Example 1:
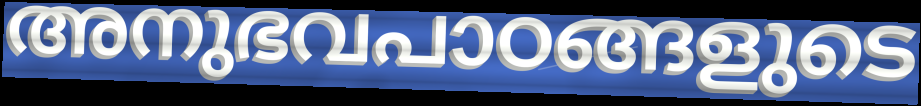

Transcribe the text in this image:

അനുഭവപാഠങ്ങളുടെ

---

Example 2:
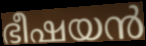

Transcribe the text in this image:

ഭീഷയൻ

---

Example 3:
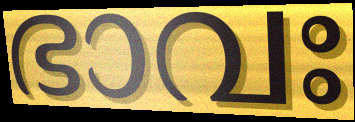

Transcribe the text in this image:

ഭാവഃ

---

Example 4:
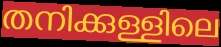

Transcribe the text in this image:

തനിക്കുള്ളിലെ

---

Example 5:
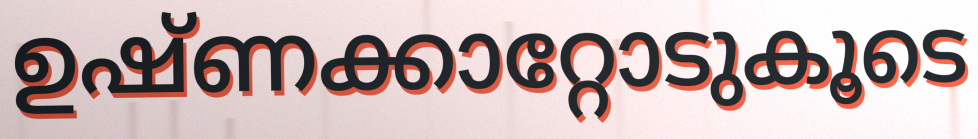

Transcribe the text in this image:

ഉഷ്ണക്കാറ്റോടുകൂടെ